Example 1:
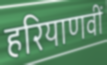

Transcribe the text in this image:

हरियाणवीं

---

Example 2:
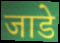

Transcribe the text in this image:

जाडे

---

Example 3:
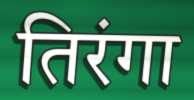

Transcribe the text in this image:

तिरंगा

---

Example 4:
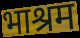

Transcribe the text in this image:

भाश्रम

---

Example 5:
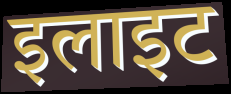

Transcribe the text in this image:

इलाइट